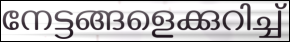
നേട്ടങ്ങളെക്കുറിച്ച്